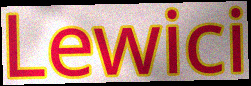
Lewici